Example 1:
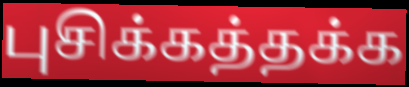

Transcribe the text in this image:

புசிக்கத்தக்க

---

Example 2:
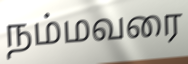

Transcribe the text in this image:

நம்மவரை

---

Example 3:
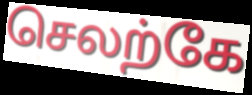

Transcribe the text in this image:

செலற்கே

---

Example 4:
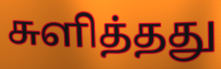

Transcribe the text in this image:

சுளித்தது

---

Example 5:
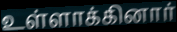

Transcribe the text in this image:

உள்ளாக்கினார்